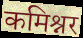
कमिश्नर